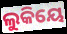
ଲୁକିୟେ